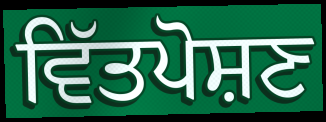
ਵਿੱਤਪੋਸ਼ਣ